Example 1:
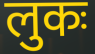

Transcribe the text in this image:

लुकः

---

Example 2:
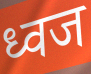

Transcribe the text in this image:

ध्वज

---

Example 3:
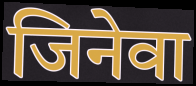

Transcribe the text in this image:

जिनेवा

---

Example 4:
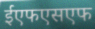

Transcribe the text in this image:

ईएफएसएफ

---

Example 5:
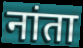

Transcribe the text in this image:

नांता